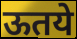
ऊतये